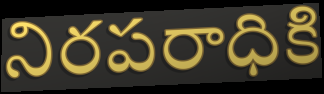
నిరపరాధికి